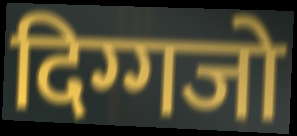
दिग्गजो